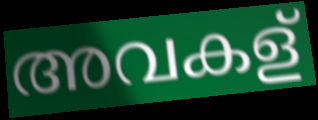
അവകള്